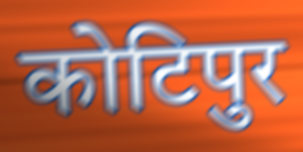
कोटिपुर